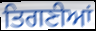
ਤਿਗਣੀਆਂ